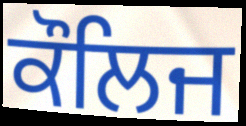
ਕੌਲਿਜ